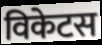
विकेटस